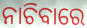
ନାଚିବାରେ